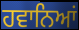
ਹਵਾਨਿਆਂ